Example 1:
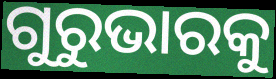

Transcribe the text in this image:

ଗୁରୁଭାରକୁ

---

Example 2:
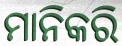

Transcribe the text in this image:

ମାନିକରି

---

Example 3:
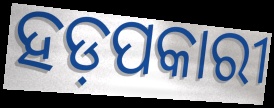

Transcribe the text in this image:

ହଡ଼ପକାରୀ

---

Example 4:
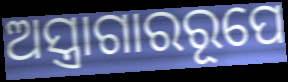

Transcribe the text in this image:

ଅସ୍ତ୍ରାଗାରରୂପେ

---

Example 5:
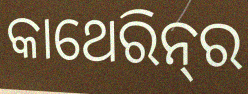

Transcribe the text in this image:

କାଥେରିନ୍‌ର